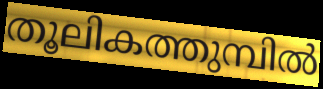
തൂലികത്തുമ്പിൽ